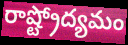
రాష్ట్రోద్యమం